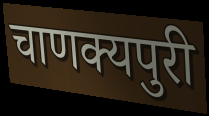
चाणक्यपुरी